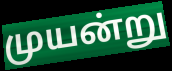
முயன்று